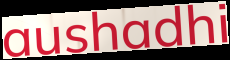
aushadhi